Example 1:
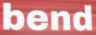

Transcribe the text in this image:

bend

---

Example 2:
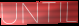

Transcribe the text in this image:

UNTIL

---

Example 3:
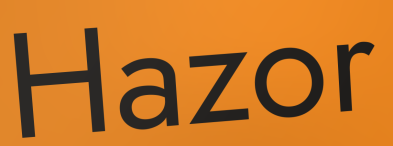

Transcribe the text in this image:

Hazor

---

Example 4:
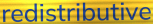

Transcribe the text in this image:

redistributive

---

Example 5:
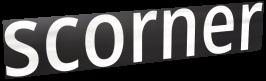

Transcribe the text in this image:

scorner